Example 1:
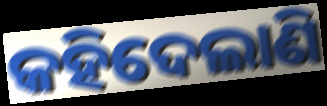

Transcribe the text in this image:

କହିଦେଲାଣି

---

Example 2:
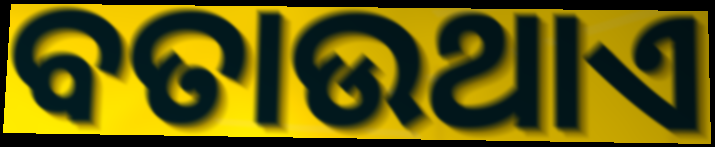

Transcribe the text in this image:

ବତାଉଥାଏ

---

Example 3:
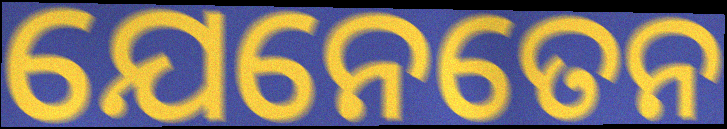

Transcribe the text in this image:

ଯେନେତେନ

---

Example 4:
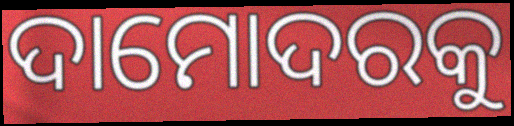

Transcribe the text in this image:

ଦାମୋଦରକୁ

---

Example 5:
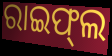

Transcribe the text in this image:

ରାଇଫ୍‌ଲ